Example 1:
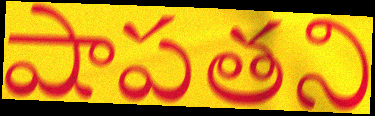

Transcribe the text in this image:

షాపతని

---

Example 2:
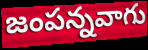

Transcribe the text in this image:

జంపన్నవాగు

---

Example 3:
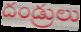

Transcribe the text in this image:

దండ్రులు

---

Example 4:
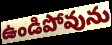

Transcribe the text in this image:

ఉండిపోవును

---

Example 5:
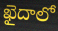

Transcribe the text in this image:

ఖైదాలో